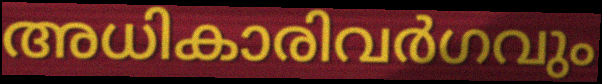
അധികാരിവർഗവും